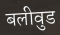
बलीवुड